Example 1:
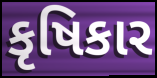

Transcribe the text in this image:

કૃષિકાર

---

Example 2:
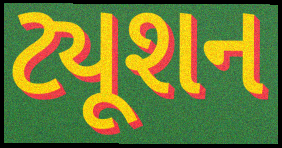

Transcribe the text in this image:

ટ્યૂશન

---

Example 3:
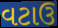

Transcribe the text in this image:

વટાઉ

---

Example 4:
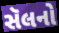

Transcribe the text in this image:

સૅલનો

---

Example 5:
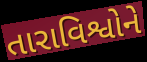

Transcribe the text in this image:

તારાવિશ્વોને